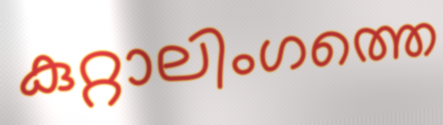
കുറ്റാലിംഗത്തെ